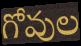
గోవుల